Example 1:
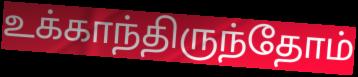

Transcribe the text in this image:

உக்காந்திருந்தோம்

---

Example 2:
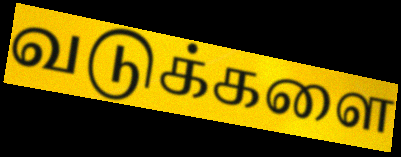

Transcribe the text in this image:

வடுக்களை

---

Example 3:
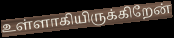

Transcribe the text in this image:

உள்ளாகியிருக்கிறேன்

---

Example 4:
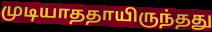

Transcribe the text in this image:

முடியாததாயிருந்தது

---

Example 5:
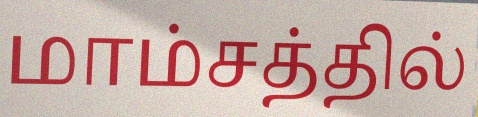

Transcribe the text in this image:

மாம்சத்தில்